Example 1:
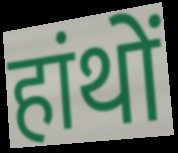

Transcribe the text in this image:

हांथों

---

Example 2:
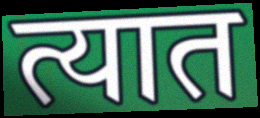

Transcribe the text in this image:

त्यात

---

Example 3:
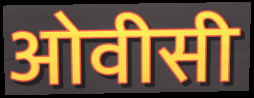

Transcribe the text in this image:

ओवीसी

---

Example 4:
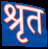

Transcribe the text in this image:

श्रृत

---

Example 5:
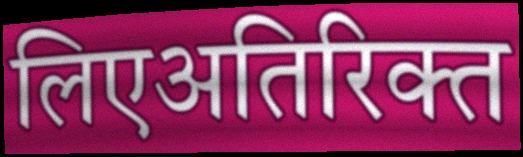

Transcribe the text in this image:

लिएअतिरिक्त